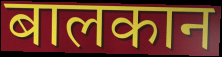
बालकान